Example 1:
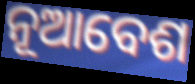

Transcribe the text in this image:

ନୂଆବେଶ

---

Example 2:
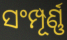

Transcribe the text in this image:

ସଂମ୍ପୂର୍ଣ୍ଣ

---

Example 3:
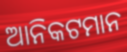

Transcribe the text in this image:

ଆନିକଟମାନ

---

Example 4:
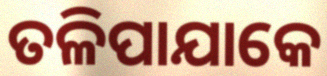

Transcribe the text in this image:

ତଳିପାଯାକେ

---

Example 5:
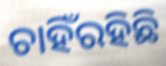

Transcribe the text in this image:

ଚାହିଁରହିଛି